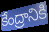
కేంద్రానికి